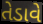
તેડાવે